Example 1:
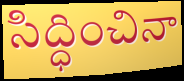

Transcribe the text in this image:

సిద్ధించినా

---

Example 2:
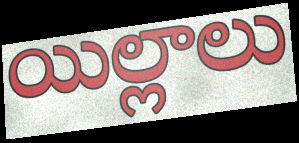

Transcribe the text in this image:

యిల్లాలు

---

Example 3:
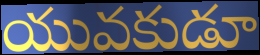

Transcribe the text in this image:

యువకుడూ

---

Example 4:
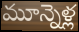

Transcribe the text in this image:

మూన్నెళ్ల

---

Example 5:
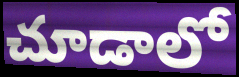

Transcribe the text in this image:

చూడాలో